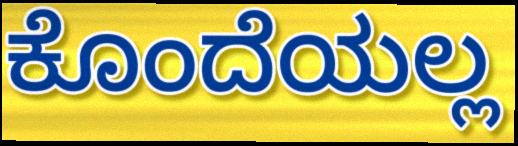
ಕೊಂದೆಯಲ್ಲ